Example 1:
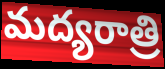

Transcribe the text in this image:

మద్యరాత్రి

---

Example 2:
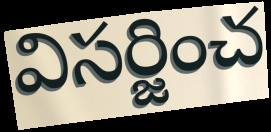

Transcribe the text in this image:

విసర్జించ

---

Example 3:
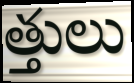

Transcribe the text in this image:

త్తులు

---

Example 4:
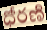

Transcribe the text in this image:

ధోరణి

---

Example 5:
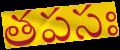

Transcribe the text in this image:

తపసః